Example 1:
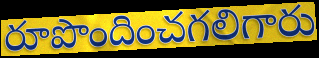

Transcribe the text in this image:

రూపొందించగలిగారు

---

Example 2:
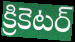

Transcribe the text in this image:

క్రికెటర్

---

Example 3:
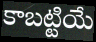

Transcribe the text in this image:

కాబట్టియే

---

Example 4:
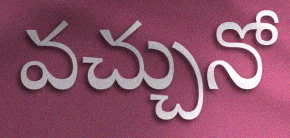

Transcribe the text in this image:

వచ్చునో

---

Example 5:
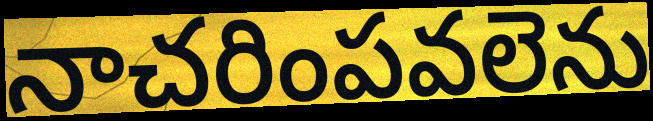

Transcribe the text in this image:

నాచరింపవలెను